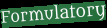
Formulatory